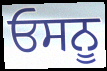
ਓਸਨੂ